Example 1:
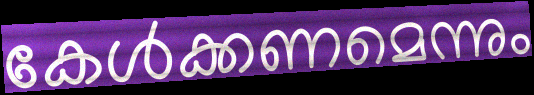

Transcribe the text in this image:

കേൾക്കണമെന്നും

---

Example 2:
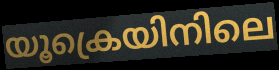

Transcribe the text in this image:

യൂക്രെയിനിലെ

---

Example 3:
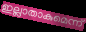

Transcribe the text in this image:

ഇല്ലാതാകുമെന്ന്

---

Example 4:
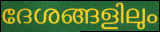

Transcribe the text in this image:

ദേശങ്ങളിലും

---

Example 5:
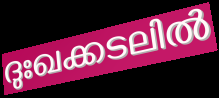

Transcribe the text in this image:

ദുഃഖക്കടലിൽ